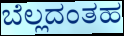
ಬೆಲ್ಲದಂತಹ